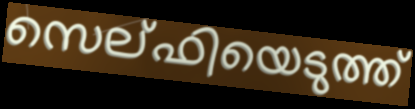
സെല്ഫിയെടുത്ത്